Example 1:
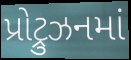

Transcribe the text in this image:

પ્રોટ્રુઝનમાં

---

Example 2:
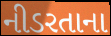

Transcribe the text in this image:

નીડરતાના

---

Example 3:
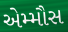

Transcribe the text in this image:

એમ્મૌસ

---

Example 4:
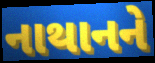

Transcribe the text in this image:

નાથાનને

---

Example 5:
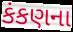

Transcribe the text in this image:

કંકણના